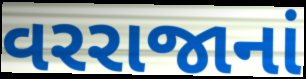
વરરાજાનાં